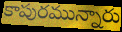
కాపురమున్నారు